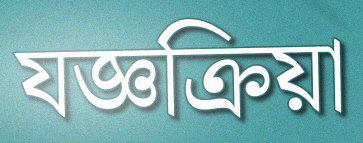
যজ্ঞক্রিয়া